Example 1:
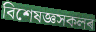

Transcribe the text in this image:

বিশেষজ্ঞসকলৰ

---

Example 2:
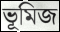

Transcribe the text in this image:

ভূমিজ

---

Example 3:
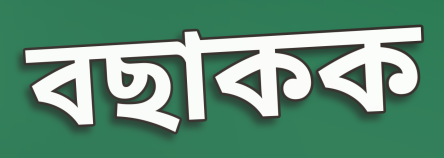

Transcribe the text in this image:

বছাকক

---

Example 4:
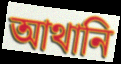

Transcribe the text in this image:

আথানি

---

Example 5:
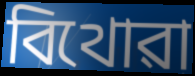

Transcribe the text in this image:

বিথোৱা